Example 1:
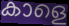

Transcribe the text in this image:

കാളെ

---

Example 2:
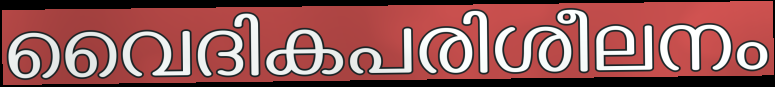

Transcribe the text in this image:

വൈദികപരിശീലനം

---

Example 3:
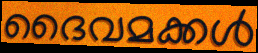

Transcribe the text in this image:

ദൈവമക്കൾ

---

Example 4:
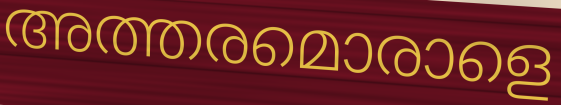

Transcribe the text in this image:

അത്തരമൊരാളെ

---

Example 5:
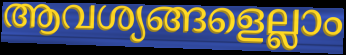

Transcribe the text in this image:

ആവശ്യങ്ങളെല്ലാം